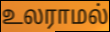
உலராமல்